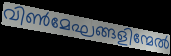
വിൺമേഘങ്ങളിന്മേൽ